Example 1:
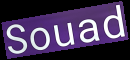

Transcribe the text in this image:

Souad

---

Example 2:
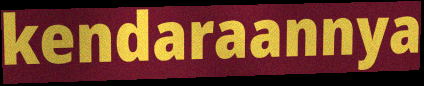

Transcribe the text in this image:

kendaraannya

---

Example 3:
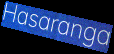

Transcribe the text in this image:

Hasaranga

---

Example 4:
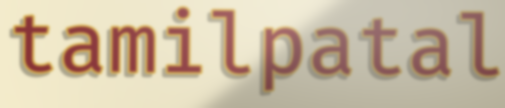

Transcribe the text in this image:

tamilpatal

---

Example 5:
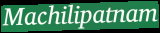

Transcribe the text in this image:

Machilipatnam